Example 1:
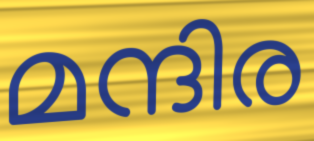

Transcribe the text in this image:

മന്ദിര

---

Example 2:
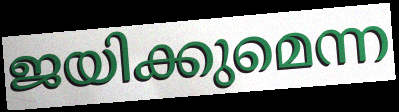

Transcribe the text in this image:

ജയിക്കുമെന്ന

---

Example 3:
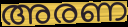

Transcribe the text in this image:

അരണ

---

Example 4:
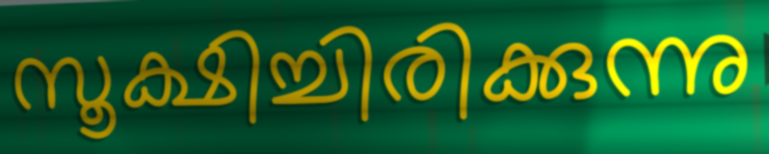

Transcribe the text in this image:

സൂക്ഷിച്ചിരിക്കുന്നു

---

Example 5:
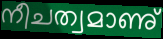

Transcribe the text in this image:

നീചത്വമാണു്